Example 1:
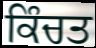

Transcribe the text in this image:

ਕਿੰਚਤ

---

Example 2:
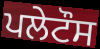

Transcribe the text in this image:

ਪਲੇਟੌਸ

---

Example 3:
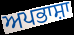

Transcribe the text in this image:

ਅਪਭਾਸ਼ਾ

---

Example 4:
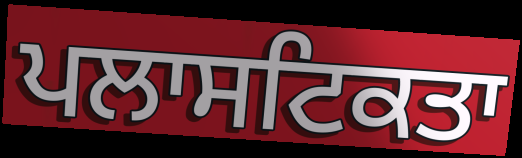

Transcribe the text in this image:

ਪਲਾਸਟਿਕਤਾ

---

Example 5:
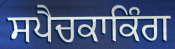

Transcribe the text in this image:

ਸਪੈਚਕਾਕਿੰਗ